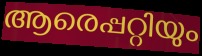
ആരെപ്പറ്റിയും